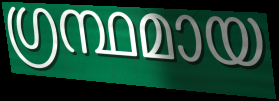
ഗ്രന്ഥമായ